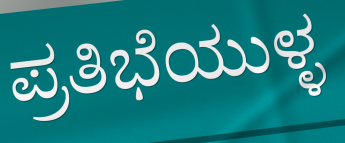
ಪ್ರತಿಭೆಯುಳ್ಳ